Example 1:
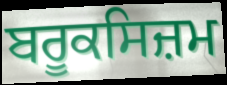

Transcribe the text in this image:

ਬਰੂਕਸਿਜ਼ਮ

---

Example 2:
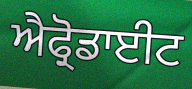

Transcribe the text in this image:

ਐਫ੍ਰੋਡਾਈਟ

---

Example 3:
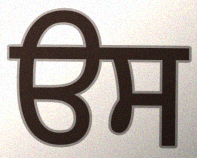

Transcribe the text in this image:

ੳਸ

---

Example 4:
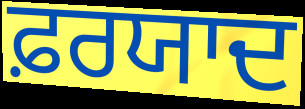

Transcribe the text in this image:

ਫ਼ਰਯਾਦ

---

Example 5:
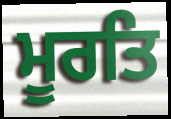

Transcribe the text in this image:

ਮੂਰਤਿ